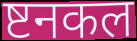
ष्टनकल